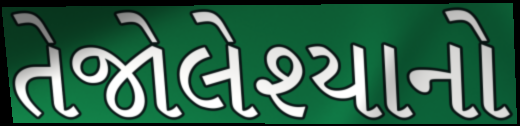
તેજોલેશ્યાનો